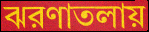
ঝরণাতলায়